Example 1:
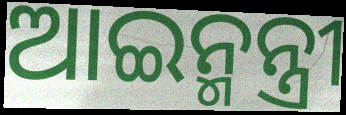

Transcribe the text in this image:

ଆଇନ୍ମନ୍ତ୍ରୀ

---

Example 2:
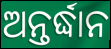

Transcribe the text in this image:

ଅନ୍ତର୍ଦ୍ଧାନ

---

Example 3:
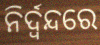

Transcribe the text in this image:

ନିର୍ଦ୍ୱନ୍ଦରେ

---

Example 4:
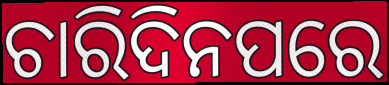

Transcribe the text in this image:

ଚାରିଦିନପରେ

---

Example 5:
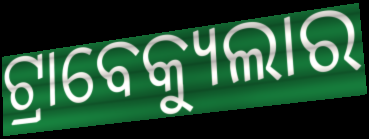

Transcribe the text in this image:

ଟ୍ରାବେକ୍ୟୁଲାର